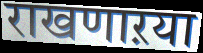
राखणाऱया